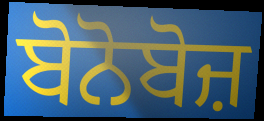
ਬੋਨੋਬੋਜ਼